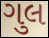
ગુલ